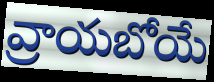
వ్రాయబోయే